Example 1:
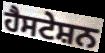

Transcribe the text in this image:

ਹੈਸਟੇਸ਼ਨ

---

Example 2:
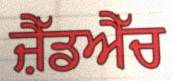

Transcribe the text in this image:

ਜ਼ੈੱਡਐੱਚ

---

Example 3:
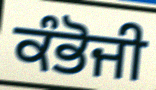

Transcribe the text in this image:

ਕੰਭੋਜੀ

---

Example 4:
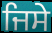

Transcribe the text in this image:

ਜਿਸੇ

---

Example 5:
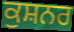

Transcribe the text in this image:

ਕੁਸ਼ਨਰ